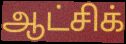
ஆட்சிக்